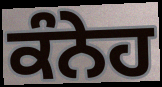
ਕੰਨੇਹ